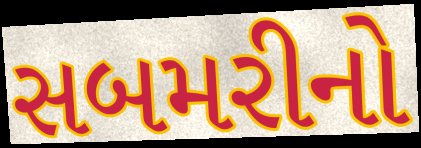
સબમરીનો